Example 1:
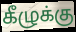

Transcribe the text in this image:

கீழுக்கு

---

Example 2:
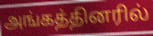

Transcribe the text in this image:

அங்கத்தினரில்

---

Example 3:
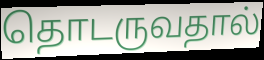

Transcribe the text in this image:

தொடருவதால்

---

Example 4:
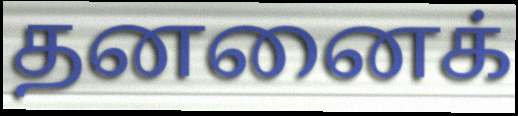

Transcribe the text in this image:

தனனைக்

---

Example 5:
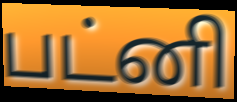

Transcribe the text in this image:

பட்னி